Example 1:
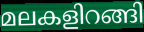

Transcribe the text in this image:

മലകളിറങ്ങി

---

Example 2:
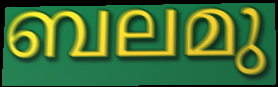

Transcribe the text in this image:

ബലമു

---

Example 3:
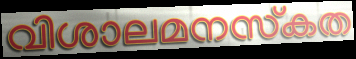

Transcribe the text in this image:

വിശാലമനസ്‌കത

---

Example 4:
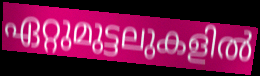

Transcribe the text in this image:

ഏറ്റുമുട്ടലുകളിൽ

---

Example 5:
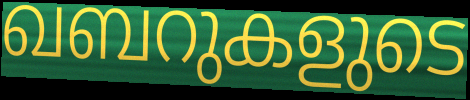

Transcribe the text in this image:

ഖബറുകളുടെ